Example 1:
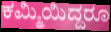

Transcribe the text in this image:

ಕಮ್ಮಿಯಿದ್ದರೂ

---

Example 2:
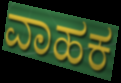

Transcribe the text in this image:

ವಾಹಕ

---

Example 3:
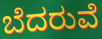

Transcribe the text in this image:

ಬೆದರುವೆ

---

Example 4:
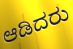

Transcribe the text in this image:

ಆಡಿದರು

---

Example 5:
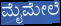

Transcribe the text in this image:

ಮೈಮೇಲೆ